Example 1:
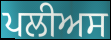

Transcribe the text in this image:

ਪਲੀਅਸ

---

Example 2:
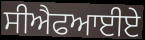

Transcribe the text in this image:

ਸੀਐਫਆਈਏ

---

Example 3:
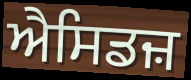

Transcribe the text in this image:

ਐਸਿਡਜ਼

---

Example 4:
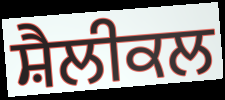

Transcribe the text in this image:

ਸ਼ੈਲੀਕਲ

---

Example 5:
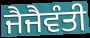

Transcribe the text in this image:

ਜੈਜੈਵੰਤੀ